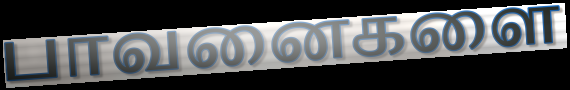
பாவனைகளை